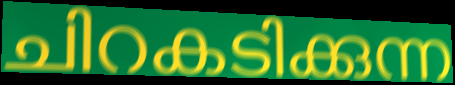
ചിറകടിക്കുന്ന